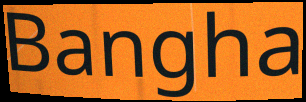
Bangha